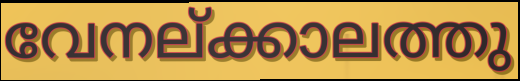
വേനല്ക്കാലത്തു